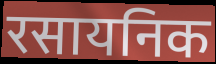
रसायनिक